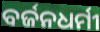
ବର୍ଜନଧର୍ମୀ